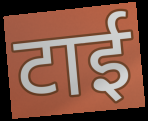
टाई